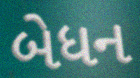
બેધન